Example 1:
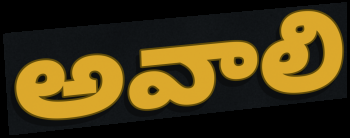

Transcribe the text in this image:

అవాలి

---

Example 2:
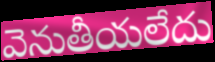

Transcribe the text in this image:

వెనుతీయలేదు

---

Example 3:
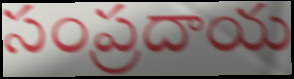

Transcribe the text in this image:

సంప్రదాయ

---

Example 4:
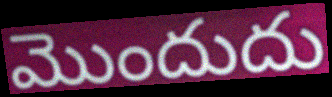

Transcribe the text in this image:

మొందుదు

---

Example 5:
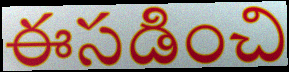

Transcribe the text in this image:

ఈసడించి